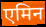
एमिन